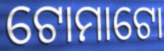
ଟୋମାଟୋ